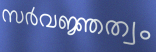
സർവജ്ഞത്വം